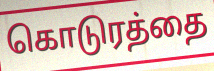
கொடுரத்தை